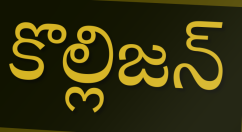
కొల్లిజన్